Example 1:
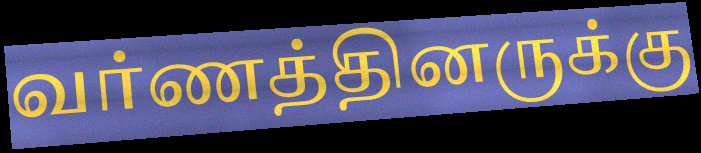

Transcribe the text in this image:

வர்ணத்தினருக்கு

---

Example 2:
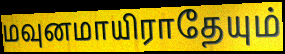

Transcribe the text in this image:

மவுனமாயிராதேயும்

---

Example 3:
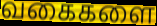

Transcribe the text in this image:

வகைகளை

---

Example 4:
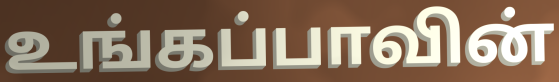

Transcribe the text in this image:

உங்கப்பாவின்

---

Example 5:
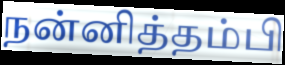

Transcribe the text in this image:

நன்னித்தம்பி